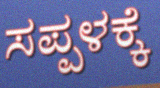
ಸಪ್ಪಳಕ್ಕೆ